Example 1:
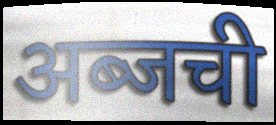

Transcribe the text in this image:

अब्जची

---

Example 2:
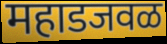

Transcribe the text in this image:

महाडजवळ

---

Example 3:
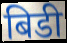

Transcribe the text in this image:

बिडी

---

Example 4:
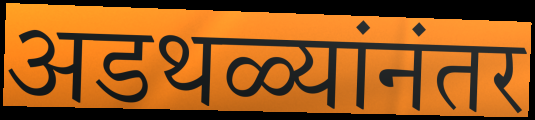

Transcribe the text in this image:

अडथळ्यांनंतर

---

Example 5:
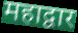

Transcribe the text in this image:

महाद्वार